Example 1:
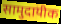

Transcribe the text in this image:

सामुदायीक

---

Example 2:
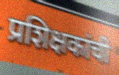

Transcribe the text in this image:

प्रशिक्षकांची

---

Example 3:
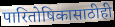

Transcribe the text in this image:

पारितोषिकासाठीही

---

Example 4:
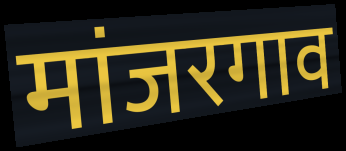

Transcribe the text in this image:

मांजरगाव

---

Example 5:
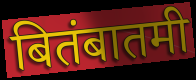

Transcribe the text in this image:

बितंबातमी